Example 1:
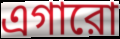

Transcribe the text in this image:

এগারো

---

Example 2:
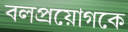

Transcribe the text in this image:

বলপ্রয়োগকে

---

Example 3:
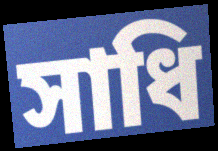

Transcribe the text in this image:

সাধি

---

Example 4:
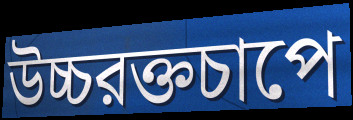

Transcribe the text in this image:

উচ্চরক্তচাপে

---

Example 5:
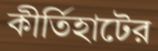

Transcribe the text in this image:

কীর্তিহাটের